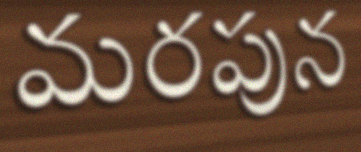
మరపున